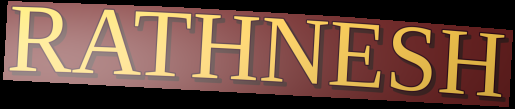
RATHNESH